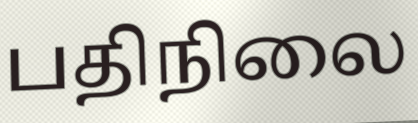
பதிநிலை